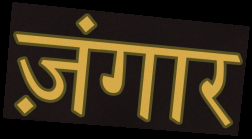
ज़ंगार